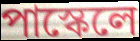
পাস্কেলে